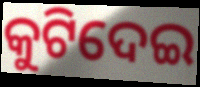
କୁଟିଦେଇ